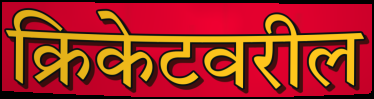
क्रिकेटवरील